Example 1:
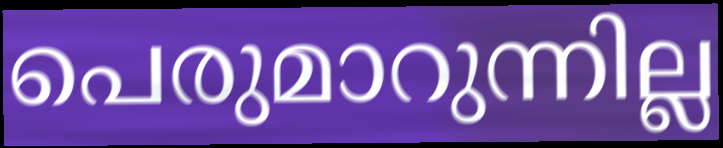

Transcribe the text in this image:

പെരുമാറുന്നില്ല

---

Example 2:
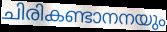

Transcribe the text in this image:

ചിരികണ്ടാനനയും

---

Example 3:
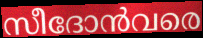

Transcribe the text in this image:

സീദോൻവരെ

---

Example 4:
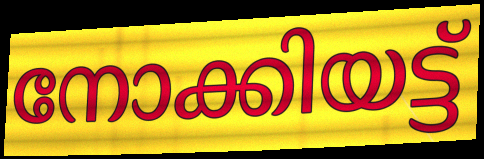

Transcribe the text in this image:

നോക്കിയട്ട്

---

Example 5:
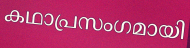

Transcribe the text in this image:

കഥാപ്രസംഗമായി